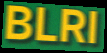
BLRI